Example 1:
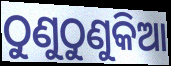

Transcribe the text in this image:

ଠୁଣୁଠୁଣୁକିଆ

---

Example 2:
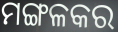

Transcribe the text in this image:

ମଙ୍ଗଳକର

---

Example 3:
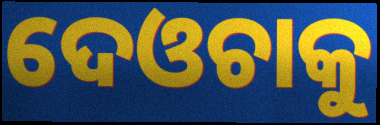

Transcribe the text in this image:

ଦେଓଚାକୁ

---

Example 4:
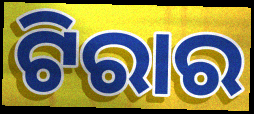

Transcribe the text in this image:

ଟିରାର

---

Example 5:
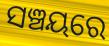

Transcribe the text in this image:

ସଞ୍ଚୟରେ